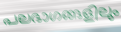
പലഭാഗങ്ങളിലും